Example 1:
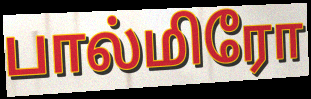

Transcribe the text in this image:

பால்மிரோ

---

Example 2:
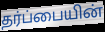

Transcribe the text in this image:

தர்ப்பையின்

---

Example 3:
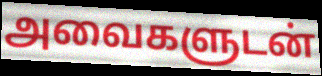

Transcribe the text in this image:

அவைகளுடன்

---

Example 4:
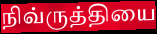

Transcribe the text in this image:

நிவ்ருத்தியை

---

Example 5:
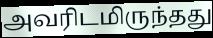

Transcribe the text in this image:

அவரிடமிருந்தது